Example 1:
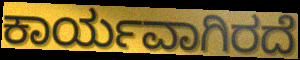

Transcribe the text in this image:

ಕಾರ್ಯವಾಗಿರದೆ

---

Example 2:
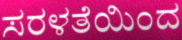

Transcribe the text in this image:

ಸರಳತೆಯಿಂದ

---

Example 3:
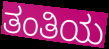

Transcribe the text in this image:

ತಂತಿಯ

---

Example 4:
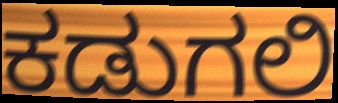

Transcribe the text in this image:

ಕಡುಗಲಿ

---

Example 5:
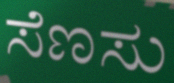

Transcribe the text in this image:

ಸೆಣಸು